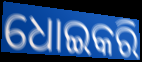
ଧୋଇକରି